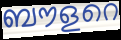
ബൗളറെ